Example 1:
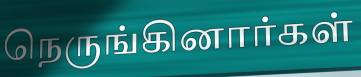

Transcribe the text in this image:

நெருங்கினார்கள்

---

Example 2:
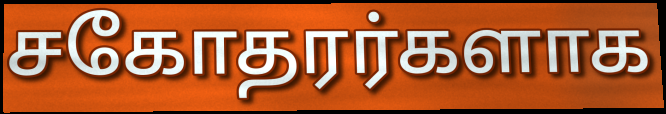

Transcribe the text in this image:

சகோதரர்களாக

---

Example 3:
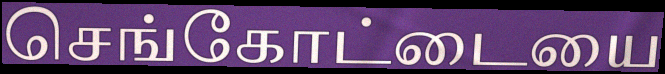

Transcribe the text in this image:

செங்கோட்டையை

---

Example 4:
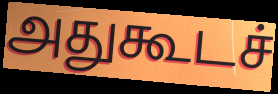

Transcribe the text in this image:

அதுகூடச்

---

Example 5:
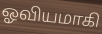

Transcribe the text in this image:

ஓவியமாகி